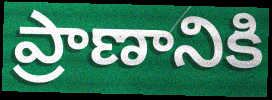
ప్రాణానికి